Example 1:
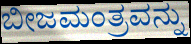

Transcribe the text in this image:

ಬೀಜಮಂತ್ರವನ್ನು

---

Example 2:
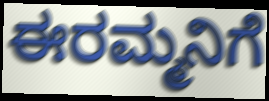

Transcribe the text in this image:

ಈರಮ್ಮನಿಗೆ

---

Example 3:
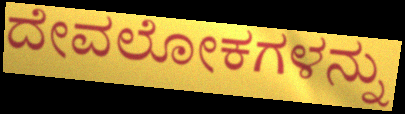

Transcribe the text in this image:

ದೇವಲೋಕಗಳನ್ನು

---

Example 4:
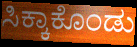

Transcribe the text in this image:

ಸಿಕ್ಕಾಕೊಂಡು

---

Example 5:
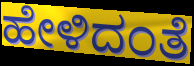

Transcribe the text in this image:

ಹೇಳಿದಂತೆ